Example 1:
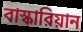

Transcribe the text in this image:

বাস্কারিয়ান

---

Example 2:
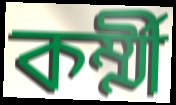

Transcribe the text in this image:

কর্ম্মী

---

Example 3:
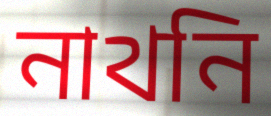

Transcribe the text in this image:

নাথনি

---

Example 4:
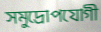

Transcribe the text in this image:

সমুদ্রোপযোগী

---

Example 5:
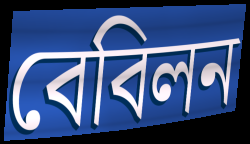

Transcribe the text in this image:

বেবিলন